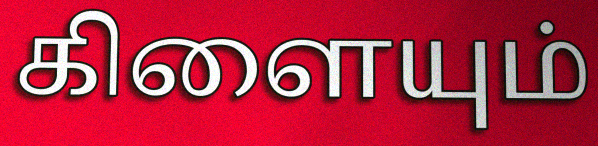
கிளையும்